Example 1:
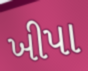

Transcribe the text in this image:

ખીપા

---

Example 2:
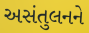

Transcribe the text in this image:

અસંતુલનને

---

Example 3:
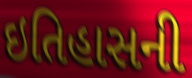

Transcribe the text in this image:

ઇતિહાસની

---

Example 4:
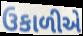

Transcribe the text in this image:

ઉકાળીએ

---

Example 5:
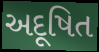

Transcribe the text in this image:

અદૂષિત